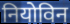
नियोविन